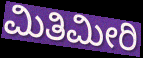
ಮಿತಿಮೀರಿ